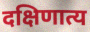
दक्षिणात्य